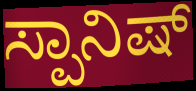
ಸ್ಪಾನಿಷ್